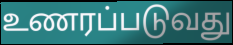
உணரப்படுவது